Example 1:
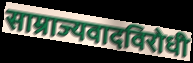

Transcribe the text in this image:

साम्राज्यवादविरोधी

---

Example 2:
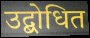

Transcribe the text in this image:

उद्बोधित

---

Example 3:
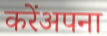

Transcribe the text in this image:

करेंअपना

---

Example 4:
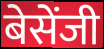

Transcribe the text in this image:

बेसेंजी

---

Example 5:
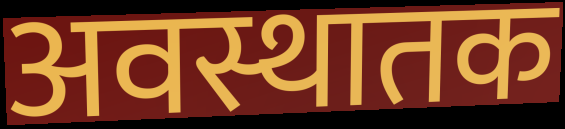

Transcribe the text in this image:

अवस्थातक